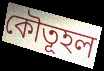
কৌতূহল